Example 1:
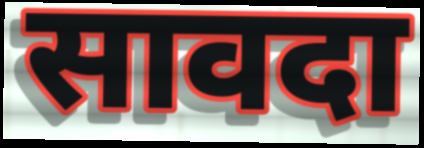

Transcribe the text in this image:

सावदा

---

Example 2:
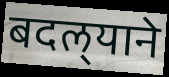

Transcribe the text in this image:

बदल्याने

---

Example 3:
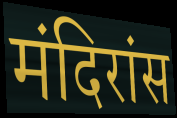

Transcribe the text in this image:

मंदिरांस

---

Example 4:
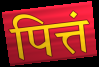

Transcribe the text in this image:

पित्तं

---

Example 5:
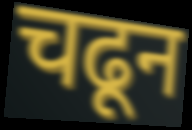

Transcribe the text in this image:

चढून